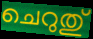
ചെറുതു്